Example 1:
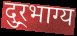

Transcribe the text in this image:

दुर्भाग्य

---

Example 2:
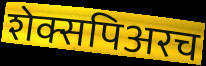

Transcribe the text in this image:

शेक्सपिअरच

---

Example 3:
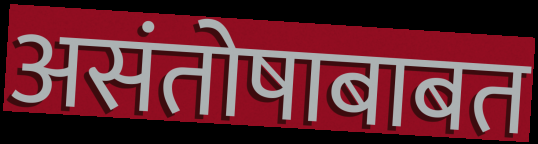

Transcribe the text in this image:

असंतोषाबाबत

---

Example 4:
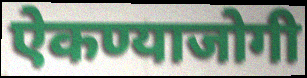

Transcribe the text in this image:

ऐकण्याजोगी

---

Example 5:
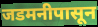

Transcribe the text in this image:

जडमनीपासून